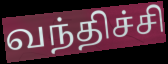
வந்திச்சி